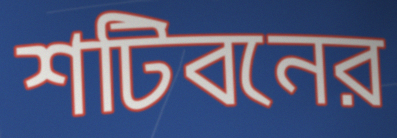
শটিবনের